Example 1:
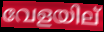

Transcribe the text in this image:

വേളയില്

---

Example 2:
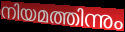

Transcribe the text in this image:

നിയമത്തിന്നും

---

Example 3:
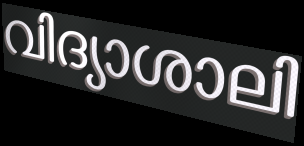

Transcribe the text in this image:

വിദ്യാശാലി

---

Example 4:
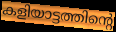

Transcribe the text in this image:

കളിയാട്ടത്തിന്റെ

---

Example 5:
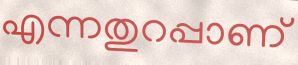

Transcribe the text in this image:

എന്നതുറപ്പാണ്